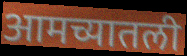
आमच्यातली